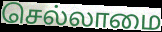
செல்லாமை